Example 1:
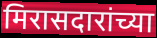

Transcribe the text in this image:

मिरासदारांच्या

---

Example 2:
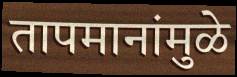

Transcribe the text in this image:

तापमानांमुळे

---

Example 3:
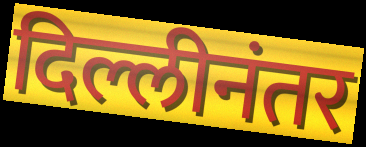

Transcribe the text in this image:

दिल्लीनंतर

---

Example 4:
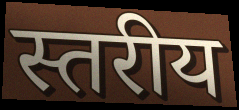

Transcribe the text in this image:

स्तरीय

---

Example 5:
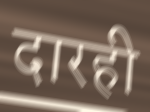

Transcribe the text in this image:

दारही